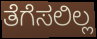
ತೆಗೆಸಲಿಲ್ಲ